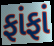
ફાંફાં